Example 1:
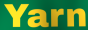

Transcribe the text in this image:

Yarn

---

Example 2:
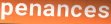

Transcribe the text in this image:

penances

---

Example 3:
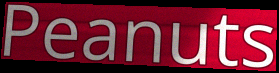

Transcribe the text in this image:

Peanuts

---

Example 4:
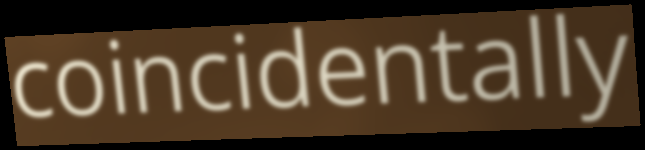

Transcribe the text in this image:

coincidentally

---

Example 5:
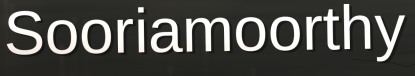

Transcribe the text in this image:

Sooriamoorthy